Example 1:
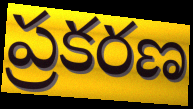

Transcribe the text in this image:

ప్రకరణ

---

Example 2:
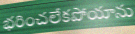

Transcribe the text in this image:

భరించలేకపోయాను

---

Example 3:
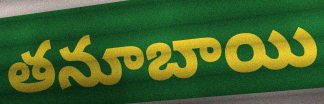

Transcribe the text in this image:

తనూబాయి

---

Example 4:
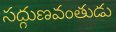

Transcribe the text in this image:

సద్గుణవంతుడు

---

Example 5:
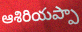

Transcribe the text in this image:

ఆశిరియప్పా